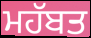
ਮਹੱਬਤ